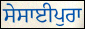
ਸੇਸਾਈਪੁਰਾ